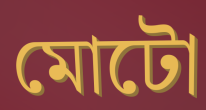
মোটো